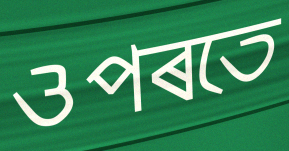
ওপৰতে